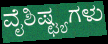
ವೈಶಿಷ್ಟ್ಯಗಳು